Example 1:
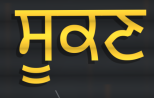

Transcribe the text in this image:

ਸੂਕਣ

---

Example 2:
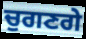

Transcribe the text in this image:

ਚੁਗਣਗੇ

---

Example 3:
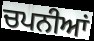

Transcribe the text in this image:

ਚਪਨੀਆਂ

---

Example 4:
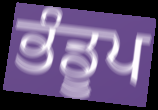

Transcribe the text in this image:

ਭੰਡੂਪ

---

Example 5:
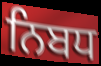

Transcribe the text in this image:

ਨਿਬਧ